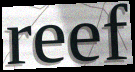
reef